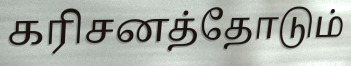
கரிசனத்தோடும்